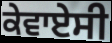
ਕੇਵਾਏਸੀ